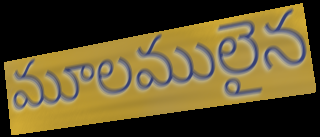
మూలములైన